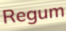
Regum